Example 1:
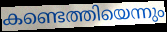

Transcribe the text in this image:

കണ്ടെത്തിയെന്നും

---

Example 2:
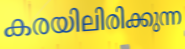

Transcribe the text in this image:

കരയിലിരിക്കുന്ന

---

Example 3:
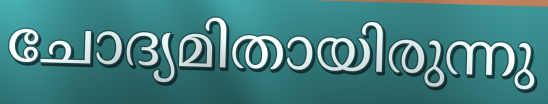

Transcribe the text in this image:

ചോദ്യമിതായിരുന്നു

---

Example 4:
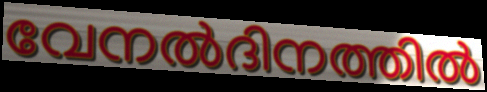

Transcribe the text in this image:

വേനൽദിനത്തിൽ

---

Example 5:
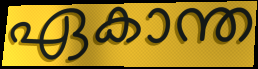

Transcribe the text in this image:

ഏകാന്ത